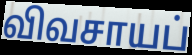
விவசாயப்